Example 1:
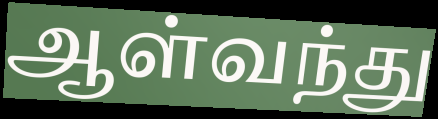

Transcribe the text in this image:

ஆள்வந்து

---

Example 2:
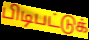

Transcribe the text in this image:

பிடிபட்டுக்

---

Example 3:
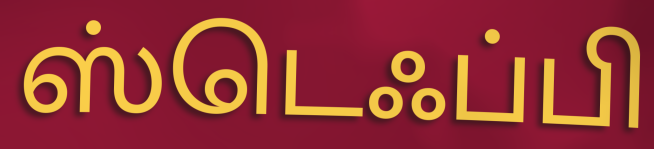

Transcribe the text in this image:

ஸ்டெஃப்பி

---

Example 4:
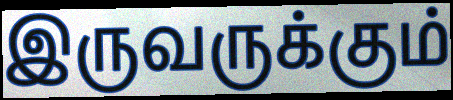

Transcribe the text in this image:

இருவருக்கும்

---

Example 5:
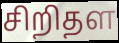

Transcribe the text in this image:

சிறிதள